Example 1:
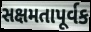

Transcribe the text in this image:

સક્ષમતાપૂર્વક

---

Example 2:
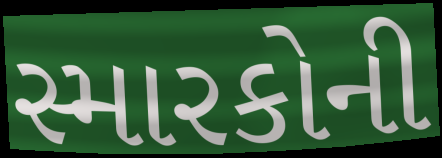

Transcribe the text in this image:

સ્મારકોની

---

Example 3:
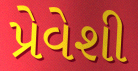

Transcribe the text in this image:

પ્રેવેશી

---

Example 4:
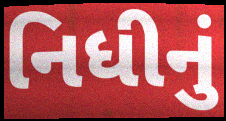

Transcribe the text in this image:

નિધીનું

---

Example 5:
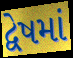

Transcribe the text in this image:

દ્વેષમાં